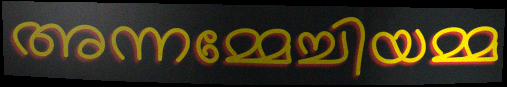
അന്നമ്മേച്ചിയമ്മ